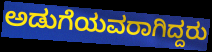
ಅಡುಗೆಯವರಾಗಿದ್ದರು